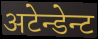
अटेन्डेन्ट